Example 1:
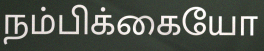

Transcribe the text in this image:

நம்பிக்கையோ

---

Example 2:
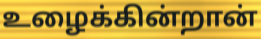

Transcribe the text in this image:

உழைக்கின்றான்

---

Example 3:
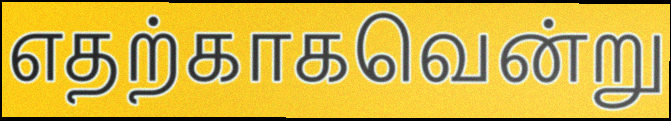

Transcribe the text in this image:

எதற்காகவென்று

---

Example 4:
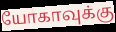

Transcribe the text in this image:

யோகாவுக்கு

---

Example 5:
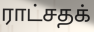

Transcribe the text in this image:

ராட்சதக்